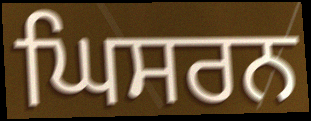
ਘਿਸਰਨ